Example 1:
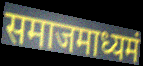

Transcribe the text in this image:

समाजमाध्यमं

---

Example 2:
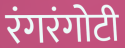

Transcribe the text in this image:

रंगरंगोटी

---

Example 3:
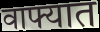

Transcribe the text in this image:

वाफ्यात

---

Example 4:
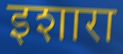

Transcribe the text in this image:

इशारा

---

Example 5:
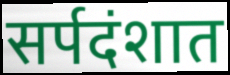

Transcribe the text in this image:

सर्पदंशात